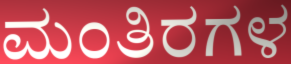
ಮಂತಿರಗಳ